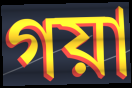
গয়া